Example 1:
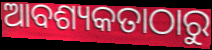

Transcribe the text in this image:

ଆବଶ୍ୟକତାଠାରୁ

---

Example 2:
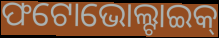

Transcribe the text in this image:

ଫଟୋଭୋଲ୍ଟାଇକ୍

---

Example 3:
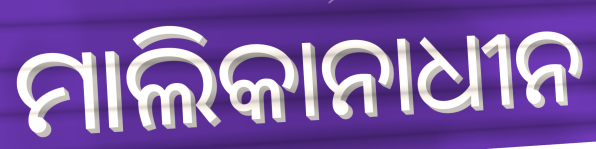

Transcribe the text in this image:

ମାଲିକାନାଧୀନ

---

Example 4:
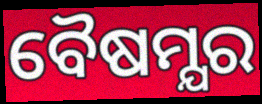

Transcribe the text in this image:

ବୈଷମ୍ଯର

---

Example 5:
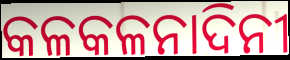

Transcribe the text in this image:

କଳକଳନାଦିନୀ